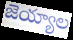
జెయ్యాల